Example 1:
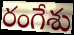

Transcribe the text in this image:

రంగేశు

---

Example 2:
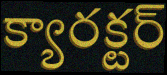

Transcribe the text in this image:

క్యారక్టర్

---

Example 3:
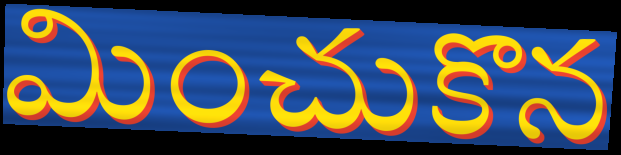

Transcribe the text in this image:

మించుకొన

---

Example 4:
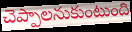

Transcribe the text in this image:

చెప్పాలనుకుంటుంది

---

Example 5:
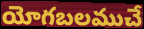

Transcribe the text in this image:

యోగబలముచే